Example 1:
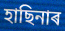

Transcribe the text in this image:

হাছিনাৰ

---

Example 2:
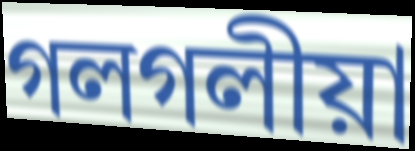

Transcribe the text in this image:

গলগলীয়া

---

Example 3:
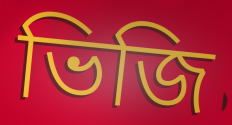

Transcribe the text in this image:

ভিজি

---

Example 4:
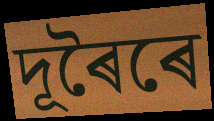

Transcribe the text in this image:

দূৰৈৰে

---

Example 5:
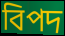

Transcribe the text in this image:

বিপদ